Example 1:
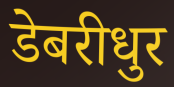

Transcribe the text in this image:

डेबरीधुर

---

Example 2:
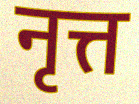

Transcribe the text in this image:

नृत्त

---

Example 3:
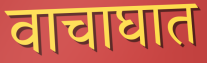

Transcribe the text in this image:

वाचाघात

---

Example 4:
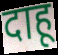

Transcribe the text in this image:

दाहू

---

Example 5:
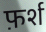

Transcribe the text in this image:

फ़र्श